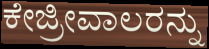
ಕೇಜ್ರೀವಾಲರನ್ನು